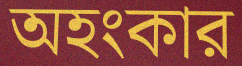
অহংকার